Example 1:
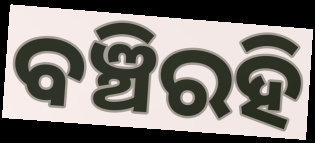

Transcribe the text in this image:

ବଞ୍ଚିରହି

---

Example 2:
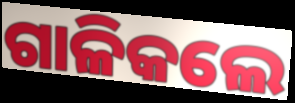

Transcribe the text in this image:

ଗାଳିକଲେ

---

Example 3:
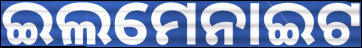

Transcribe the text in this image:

ଇଲମେନାଇଟ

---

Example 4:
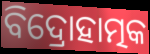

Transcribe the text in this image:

ବିଦ୍ରୋହାତ୍ମକ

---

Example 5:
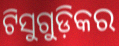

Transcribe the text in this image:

ଟିସୁଗୁଡ଼ିକର